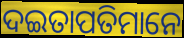
ଦଇତାପତିମାନେ